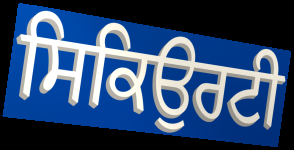
ਸਿਕਿਉਰਟੀ